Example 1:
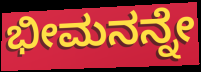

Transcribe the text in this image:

ಭೀಮನನ್ನೇ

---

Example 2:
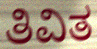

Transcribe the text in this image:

ತಿವಿತ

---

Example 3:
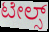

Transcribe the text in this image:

ಟೇಲ್ಸ್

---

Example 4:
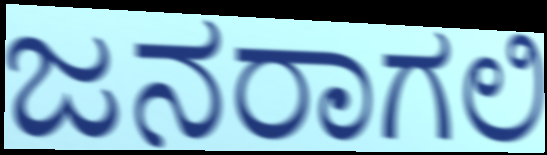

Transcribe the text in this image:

ಜನರಾಗಲಿ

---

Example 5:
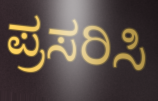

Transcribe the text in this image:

ಪ್ರಸರಿಸಿ